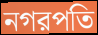
নগরপতি